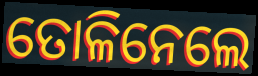
ତୋଳିନେଲେ